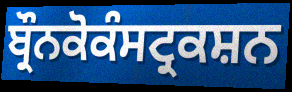
ਬ੍ਰੌਨਕੋਕੰਸਟ੍ਰਕਸ਼ਨ